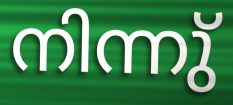
നിന്നു്